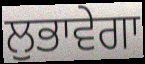
ਲੁਭਾਵੇਗਾ